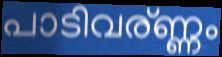
പാടിവര്ണ്ണം